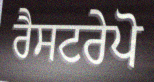
ਰੈਸਟਰੇਪੋ